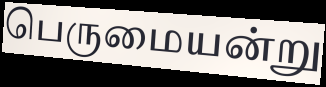
பெருமையன்று